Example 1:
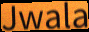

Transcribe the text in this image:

Jwala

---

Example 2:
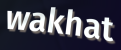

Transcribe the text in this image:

wakhat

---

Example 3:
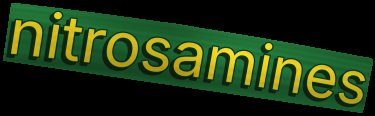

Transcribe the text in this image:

nitrosamines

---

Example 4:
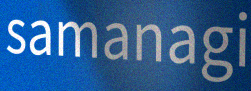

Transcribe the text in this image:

samanagi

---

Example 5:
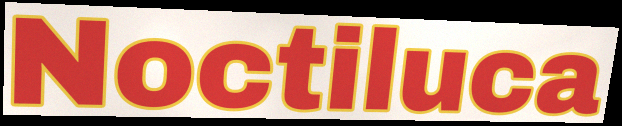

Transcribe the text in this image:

Noctiluca